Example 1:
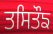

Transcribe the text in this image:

ਤਸਿਤੌਙ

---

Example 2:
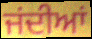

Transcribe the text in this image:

ਜਂਦੀਆਂ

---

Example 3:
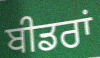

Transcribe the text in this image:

ਬੀਡਰਾਂ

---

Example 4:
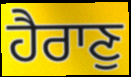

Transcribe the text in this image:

ਹੈਰਾਣੁ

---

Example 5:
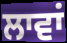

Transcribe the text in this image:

ਲਾਵਾਂ